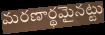
మరణార్థమైనట్టు